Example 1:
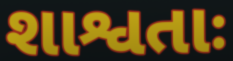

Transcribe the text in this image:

શાશ્વતાઃ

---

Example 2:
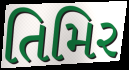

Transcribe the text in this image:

તિમિર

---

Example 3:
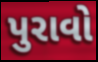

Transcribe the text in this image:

પુરાવો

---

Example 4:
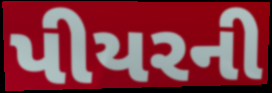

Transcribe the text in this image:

પીયરની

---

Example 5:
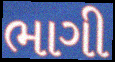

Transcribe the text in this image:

ભાગી